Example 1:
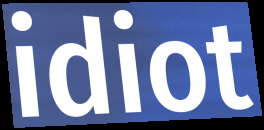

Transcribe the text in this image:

idiot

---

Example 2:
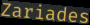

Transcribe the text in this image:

Zariades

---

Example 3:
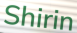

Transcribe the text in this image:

Shirin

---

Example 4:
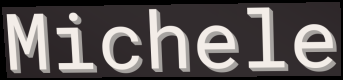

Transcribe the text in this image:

Michele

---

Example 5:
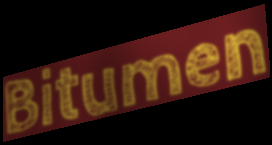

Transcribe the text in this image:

Bitumen